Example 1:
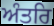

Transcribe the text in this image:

ਅੰਤਰਿ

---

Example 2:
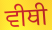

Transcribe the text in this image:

ਵੀਥੀ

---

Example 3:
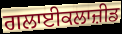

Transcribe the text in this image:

ਗਲਾਈਕਲਾਜ਼ੀਡ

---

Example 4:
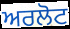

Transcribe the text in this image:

ਅਰਲੋਟ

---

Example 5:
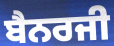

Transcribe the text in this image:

ਬੈਨਰਜੀ